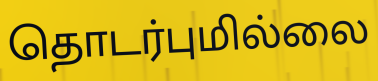
தொடர்புமில்லை